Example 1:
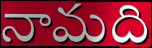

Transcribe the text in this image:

నామది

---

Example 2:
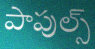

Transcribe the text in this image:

పాపుల్స్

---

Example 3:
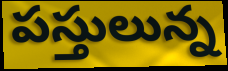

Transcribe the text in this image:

పస్తులున్న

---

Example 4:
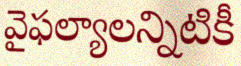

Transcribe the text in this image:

వైఫల్యాలన్నిటికీ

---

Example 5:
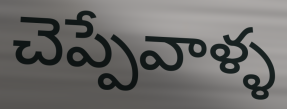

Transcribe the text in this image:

చెప్పేవాళ్ళ